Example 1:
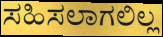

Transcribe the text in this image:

ಸಹಿಸಲಾಗಲಿಲ್ಲ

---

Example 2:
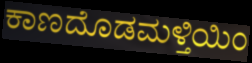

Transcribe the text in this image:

ಕಾಣದೊಡಮಳ್ತಿಯಿಂ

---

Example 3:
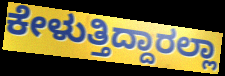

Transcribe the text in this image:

ಕೇಳುತ್ತಿದ್ದಾರಲ್ಲಾ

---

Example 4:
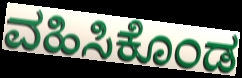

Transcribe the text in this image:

ವಹಿಸಿಕೊಂಡ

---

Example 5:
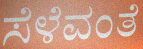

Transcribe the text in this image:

ಸೆಳೆವಂತೆ